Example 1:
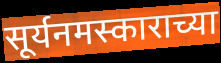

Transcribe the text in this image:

सूर्यनमस्काराच्या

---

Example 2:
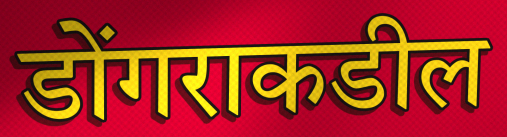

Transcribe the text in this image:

डोंगराकडील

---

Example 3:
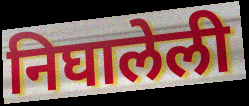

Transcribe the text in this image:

निघालेली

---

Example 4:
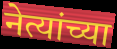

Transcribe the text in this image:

नेत्यांच्या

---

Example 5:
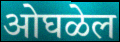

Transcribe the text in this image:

ओघळेल